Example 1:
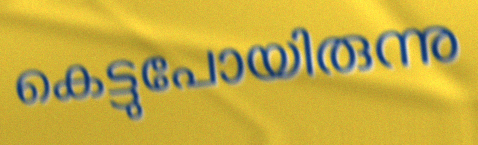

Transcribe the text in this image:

കെട്ടുപോയിരുന്നു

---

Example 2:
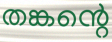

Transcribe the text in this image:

തങ്കന്റെ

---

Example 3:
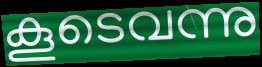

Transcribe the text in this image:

കൂടെവന്നു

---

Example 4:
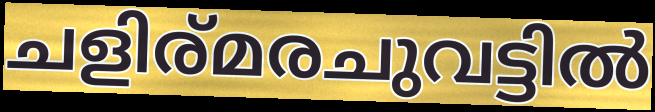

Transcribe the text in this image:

ചളിര്മരചുവട്ടിൽ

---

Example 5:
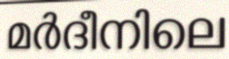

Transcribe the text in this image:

മർദീനിലെ